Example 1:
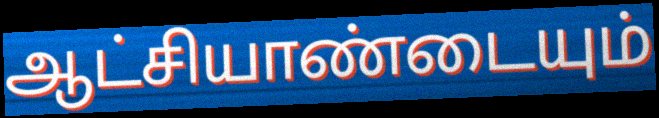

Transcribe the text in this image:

ஆட்சியாண்டையும்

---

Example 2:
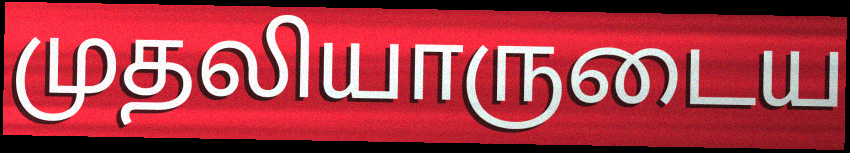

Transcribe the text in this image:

முதலியாருடைய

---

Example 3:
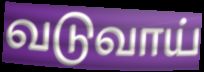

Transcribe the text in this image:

வடுவாய்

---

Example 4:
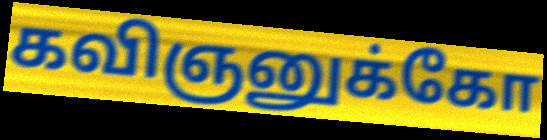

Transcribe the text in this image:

கவிஞனுக்கோ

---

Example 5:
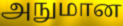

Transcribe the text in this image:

அநுமான